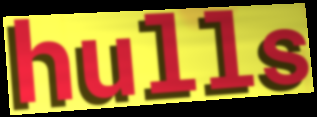
hulls